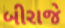
બીરાજે